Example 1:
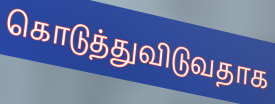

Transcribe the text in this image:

கொடுத்துவிடுவதாக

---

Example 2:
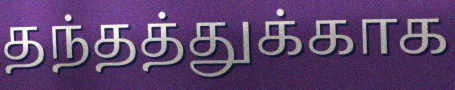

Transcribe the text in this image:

தந்தத்துக்காக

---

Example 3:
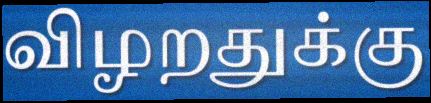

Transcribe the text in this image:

விழறதுக்கு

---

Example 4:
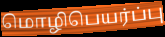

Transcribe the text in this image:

மொழிபெயர்ப்பு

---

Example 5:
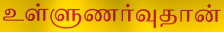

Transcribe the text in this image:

உள்ளுணர்வுதான்